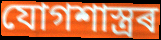
যোগশাস্ত্ৰৰ